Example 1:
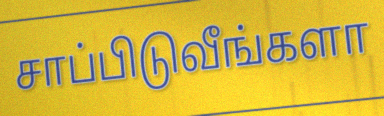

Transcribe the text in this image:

சாப்பிடுவீங்களா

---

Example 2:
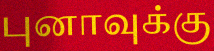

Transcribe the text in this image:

புனாவுக்கு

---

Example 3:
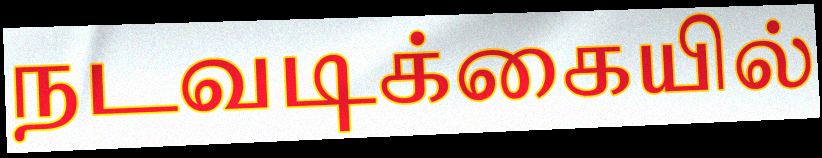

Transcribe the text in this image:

நடவடிக்கையில்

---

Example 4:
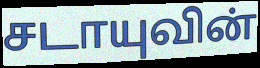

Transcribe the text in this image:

சடாயுவின்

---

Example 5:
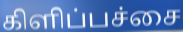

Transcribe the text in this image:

கிளிப்பச்சை